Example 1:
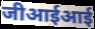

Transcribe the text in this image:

जीआईआई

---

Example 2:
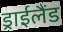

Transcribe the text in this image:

ड्राईलैंड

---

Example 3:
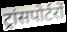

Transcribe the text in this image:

ट्रांसपोर्टरों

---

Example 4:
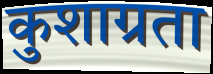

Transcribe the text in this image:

कुशाग्रता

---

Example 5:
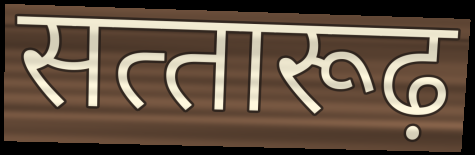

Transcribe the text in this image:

सत्‍तारूढ़